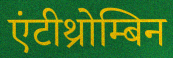
एंटीथ्रोम्बिन